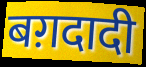
बग़दादी